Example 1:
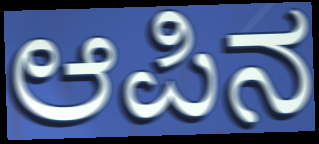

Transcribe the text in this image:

ಆಪಿನ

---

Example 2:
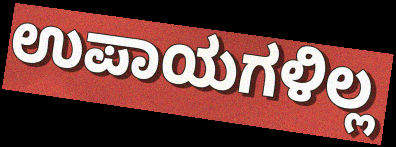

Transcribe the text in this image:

ಉಪಾಯಗಳಿಲ್ಲ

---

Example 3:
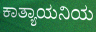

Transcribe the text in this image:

ಕಾತ್ಯಾಯನಿಯ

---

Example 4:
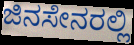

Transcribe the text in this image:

ಜಿನಸೇನರಲ್ಲಿ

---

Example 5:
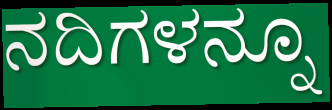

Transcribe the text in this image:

ನದಿಗಳನ್ನೂ